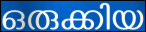
ഒരുക്കിയ